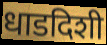
धाडदिशी